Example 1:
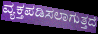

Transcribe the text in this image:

ವ್ಯಕ್ತಪಡಿಸಲಾಗುತ್ತದೆ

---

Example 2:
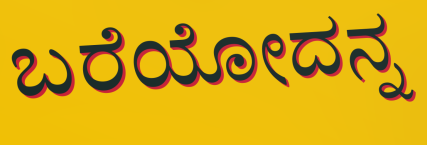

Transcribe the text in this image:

ಬರೆಯೋದನ್ನ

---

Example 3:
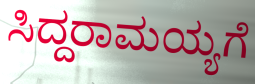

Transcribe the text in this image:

ಸಿದ್ದರಾಮಯ್ಯಗೆ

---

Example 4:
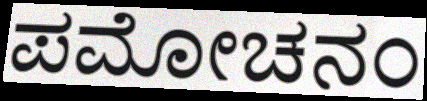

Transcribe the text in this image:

ಪಮೋಚನಂ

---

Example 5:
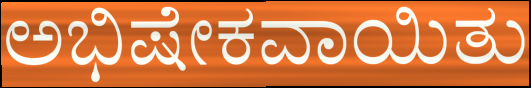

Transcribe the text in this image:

ಅಭಿಷೇಕವಾಯಿತು